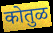
कोतुळ